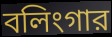
বলিংগার